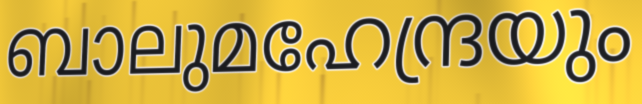
ബാലുമഹേന്ദ്രയും